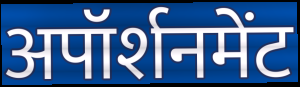
अपॉर्शनमेंट